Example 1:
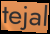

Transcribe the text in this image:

tejal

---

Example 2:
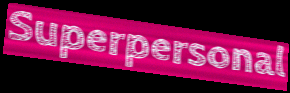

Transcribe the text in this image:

Superpersonal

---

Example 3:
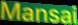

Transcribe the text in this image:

Mansai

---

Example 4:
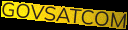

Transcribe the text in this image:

GOVSATCOM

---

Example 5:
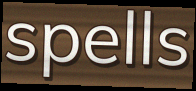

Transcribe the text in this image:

spells